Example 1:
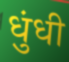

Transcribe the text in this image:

धुंधी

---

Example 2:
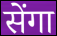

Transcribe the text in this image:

सेंगा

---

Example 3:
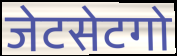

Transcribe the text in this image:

जेटसेटगो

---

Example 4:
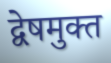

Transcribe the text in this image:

द्वेषमुक्त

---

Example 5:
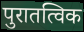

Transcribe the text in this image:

पुरातत्विक